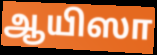
ஆயிஸா